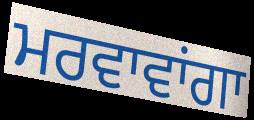
ਮਰਵਾਵਾਂਗਾ